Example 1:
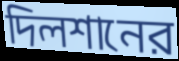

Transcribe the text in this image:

দিলশানের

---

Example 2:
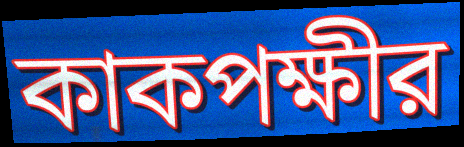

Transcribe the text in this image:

কাকপক্ষীর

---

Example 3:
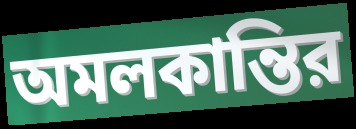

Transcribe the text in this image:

অমলকান্তির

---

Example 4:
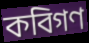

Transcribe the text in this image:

কবিগণ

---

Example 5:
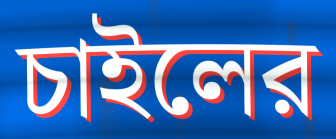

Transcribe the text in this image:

চাইলের